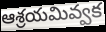
ఆశ్రయమివ్వక